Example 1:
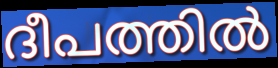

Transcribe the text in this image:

ദീപത്തിൽ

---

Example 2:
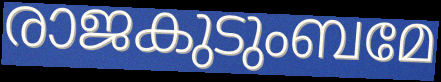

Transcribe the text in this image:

രാജകുടുംബമേ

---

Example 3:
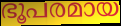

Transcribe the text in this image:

ഭൂപരമായ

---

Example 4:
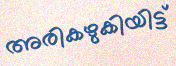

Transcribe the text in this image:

അരികഴുകിയിട്ട്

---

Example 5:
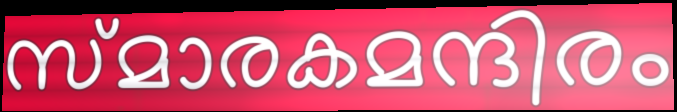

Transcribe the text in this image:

സ്മാരകമന്ദിരം